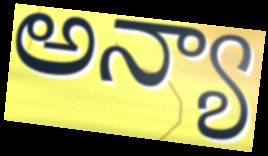
అన్యా